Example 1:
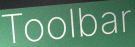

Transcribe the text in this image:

Toolbar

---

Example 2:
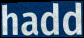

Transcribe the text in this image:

hadd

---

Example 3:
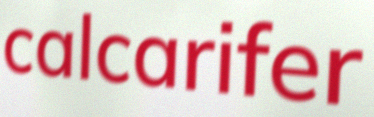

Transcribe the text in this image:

calcarifer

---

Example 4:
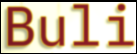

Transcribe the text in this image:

Buli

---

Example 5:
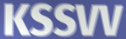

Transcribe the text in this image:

KSSVV